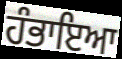
ਹੰਭਾਇਆ